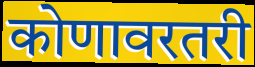
कोणावरतरी